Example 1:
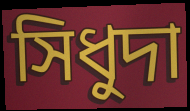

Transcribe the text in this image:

সিধুদা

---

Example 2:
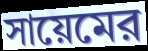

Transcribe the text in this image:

সায়েমের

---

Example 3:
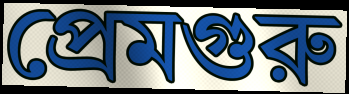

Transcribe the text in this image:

প্রেমগুরু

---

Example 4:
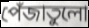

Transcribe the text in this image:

পেঁজাতুলো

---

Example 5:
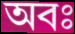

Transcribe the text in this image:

অবঃ